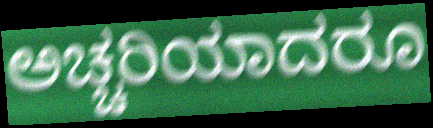
ಅಚ್ಚರಿಯಾದರೂ